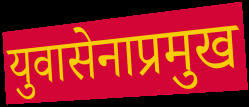
युवासेनाप्रमुख